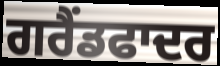
ਗਰੈਂਡਫਾਦਰ